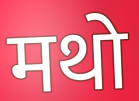
मथो